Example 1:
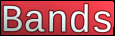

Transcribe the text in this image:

Bands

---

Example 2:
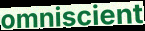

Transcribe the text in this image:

omniscient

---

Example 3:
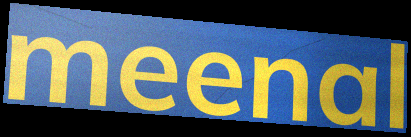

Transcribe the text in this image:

meenal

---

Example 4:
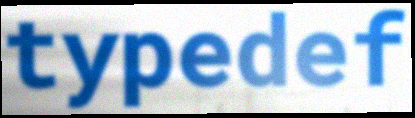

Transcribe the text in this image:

typedef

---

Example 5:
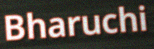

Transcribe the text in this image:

Bharuchi